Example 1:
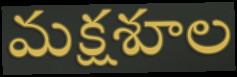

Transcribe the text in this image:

మక్షశూల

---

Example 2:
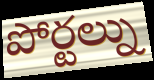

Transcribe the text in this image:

పోర్టల్ను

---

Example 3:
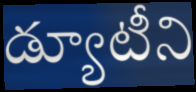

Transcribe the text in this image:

డ్యూటీని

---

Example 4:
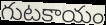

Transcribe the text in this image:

గుటకాయం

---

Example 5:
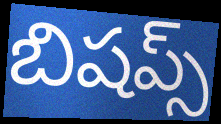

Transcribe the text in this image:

బిషప్స్